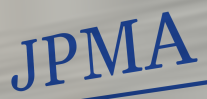
JPMA